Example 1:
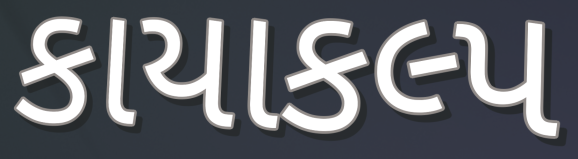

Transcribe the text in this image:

કાયાકલ્પ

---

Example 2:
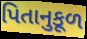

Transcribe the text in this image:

પિતાનુકૂળ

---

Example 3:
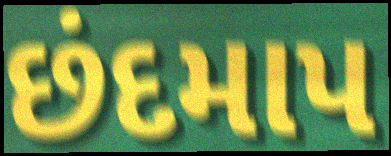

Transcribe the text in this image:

છંદમાપ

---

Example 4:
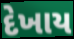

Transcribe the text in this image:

દેખાય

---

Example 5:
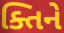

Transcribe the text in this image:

ક્તિને